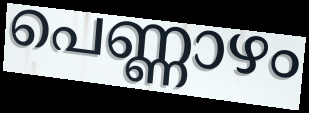
പെണ്ണാഴം